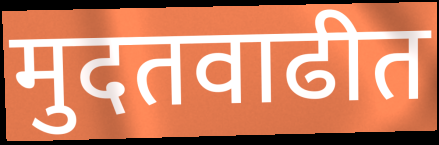
मुदतवाढीत